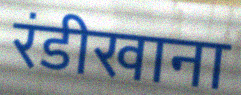
रंडीखाना